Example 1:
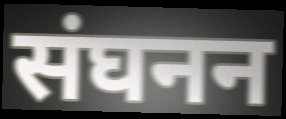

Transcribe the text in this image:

संघनन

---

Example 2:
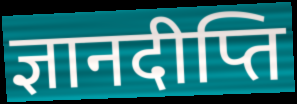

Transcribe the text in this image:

ज्ञानदीप्ति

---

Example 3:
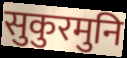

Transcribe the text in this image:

सुकुरमुनि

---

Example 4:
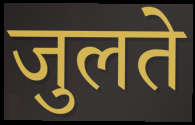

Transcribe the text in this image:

जुलते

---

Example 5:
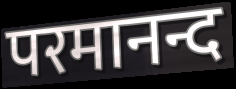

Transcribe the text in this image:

परमानन्‍द